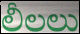
లీలలు